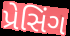
પ્રેસિંગ